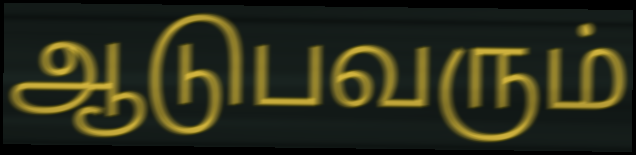
ஆடுபவரும்